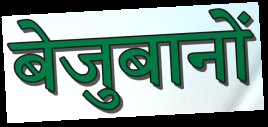
बेजुबानों